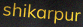
shikarpur